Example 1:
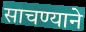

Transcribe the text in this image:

साचण्याने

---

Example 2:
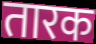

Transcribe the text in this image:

तारक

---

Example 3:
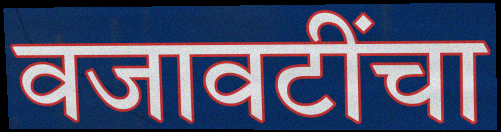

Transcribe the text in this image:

वजावटींचा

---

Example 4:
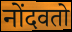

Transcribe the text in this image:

नोंदवतो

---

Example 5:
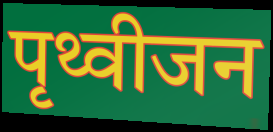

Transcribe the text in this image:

पृथ्वीजन